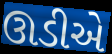
ઊડીએ